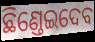
ଛିଣ୍ଡେଇଦେବ